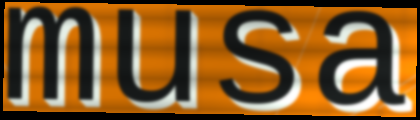
musa